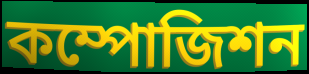
কম্পোজিশন